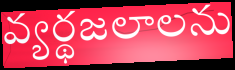
వ్యర్థజలాలను